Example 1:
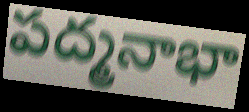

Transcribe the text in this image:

పద్మనాభా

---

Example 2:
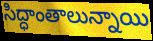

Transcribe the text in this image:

సిద్ధాంతాలున్నాయి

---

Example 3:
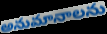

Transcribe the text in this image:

అనుమానాలను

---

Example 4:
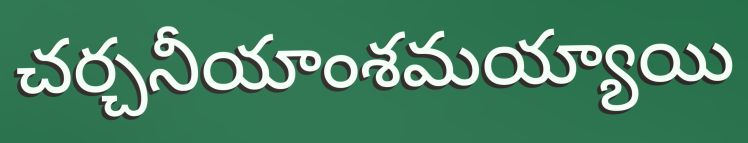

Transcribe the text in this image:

చర్చనీయాంశమయ్యాయి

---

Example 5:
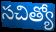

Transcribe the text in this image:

సచిత్యో